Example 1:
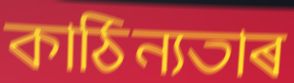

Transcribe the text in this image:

কাঠিন্যতাৰ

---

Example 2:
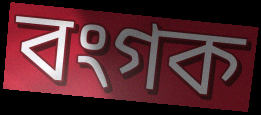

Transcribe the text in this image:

বংগক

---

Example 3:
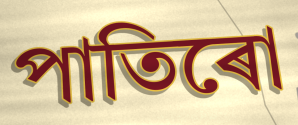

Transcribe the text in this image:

পাতিৰো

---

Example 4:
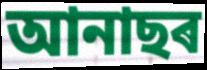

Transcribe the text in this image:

আনাছৰ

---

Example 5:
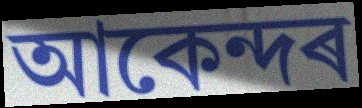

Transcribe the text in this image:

আকেন্দৰ